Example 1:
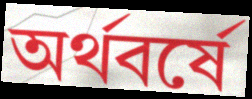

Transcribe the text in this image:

অর্থবর্ষে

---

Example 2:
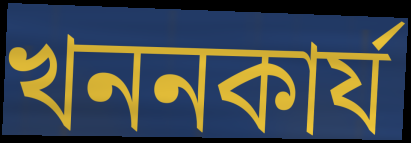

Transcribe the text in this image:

খননকার্য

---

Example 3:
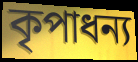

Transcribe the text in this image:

কৃপাধন্য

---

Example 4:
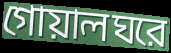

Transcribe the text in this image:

গোয়ালঘরে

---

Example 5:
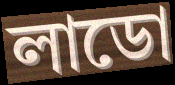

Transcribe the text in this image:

লাডো